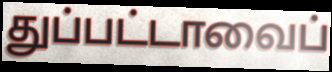
துப்பட்டாவைப்